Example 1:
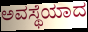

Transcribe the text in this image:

ಅವಸ್ಥೆಯಾದ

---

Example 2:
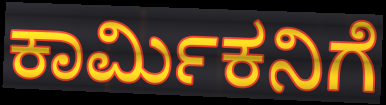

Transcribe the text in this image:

ಕಾರ್ಮಿಕನಿಗೆ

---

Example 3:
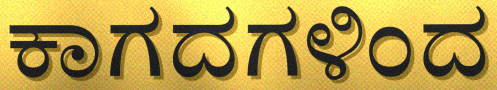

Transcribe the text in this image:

ಕಾಗದಗಳಿಂದ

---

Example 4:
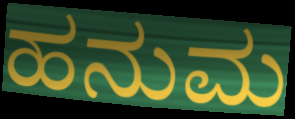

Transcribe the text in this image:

ಹನುಮ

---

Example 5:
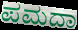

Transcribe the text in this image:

ಪಮದಾ